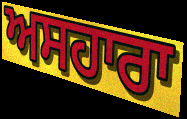
ਅਸਹਾਰਾ